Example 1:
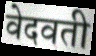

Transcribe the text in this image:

वेदवती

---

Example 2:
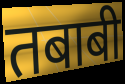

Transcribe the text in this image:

तबाबी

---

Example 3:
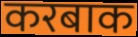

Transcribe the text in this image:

करबाक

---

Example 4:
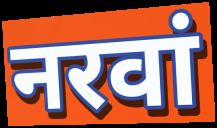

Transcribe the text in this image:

नरवां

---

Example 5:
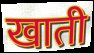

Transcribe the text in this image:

खाती